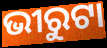
ଭୀରୁଟା